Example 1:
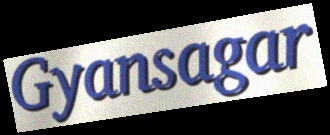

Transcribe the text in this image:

Gyansagar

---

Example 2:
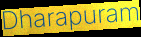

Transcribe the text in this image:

Dharapuram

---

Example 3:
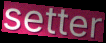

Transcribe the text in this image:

setter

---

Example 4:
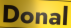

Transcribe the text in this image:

Donal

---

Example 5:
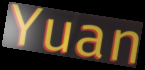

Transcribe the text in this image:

Yuan